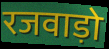
रजवाड़ो